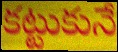
కట్టుకునే